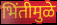
भिंतीमुळे